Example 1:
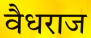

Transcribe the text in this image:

वैधराज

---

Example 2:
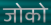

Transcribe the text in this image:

जोको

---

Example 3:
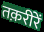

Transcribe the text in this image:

तक़रीरें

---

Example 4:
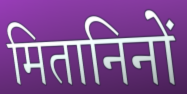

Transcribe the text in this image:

मितानिनों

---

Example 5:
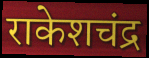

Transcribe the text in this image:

राकेशचंद्र